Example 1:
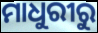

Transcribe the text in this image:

ମାଧୁରୀରୁ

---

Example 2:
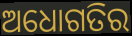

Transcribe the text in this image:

ଅଧୋଗତିର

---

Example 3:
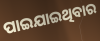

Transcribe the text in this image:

ପାଇଯାଇଥିବାର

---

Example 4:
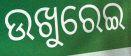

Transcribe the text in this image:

ଉଖୁରେଇ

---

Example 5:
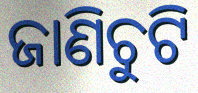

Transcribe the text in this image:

ଜାଣିଚୁଟି